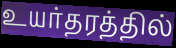
உயர்தரத்தில்